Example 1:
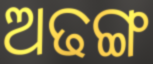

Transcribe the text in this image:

ଅଢଙ୍ଗ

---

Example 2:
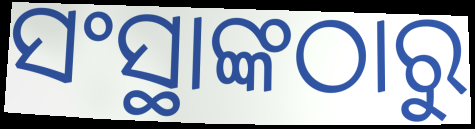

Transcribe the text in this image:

ସଂସ୍ଥାଙ୍କଠାରୁ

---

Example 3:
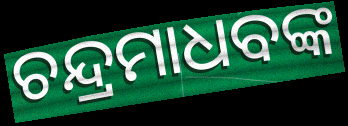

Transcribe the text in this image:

ଚନ୍ଦ୍ରମାଧବଙ୍କ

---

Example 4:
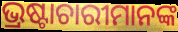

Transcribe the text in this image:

ଭ୍ରଷ୍ଟାଚାରୀମାନଙ୍କ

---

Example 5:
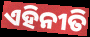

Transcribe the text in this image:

ଏହିନୀତି